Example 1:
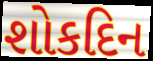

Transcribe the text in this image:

શોકદિન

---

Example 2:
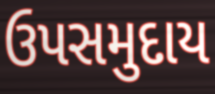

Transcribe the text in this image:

ઉપસમુદાય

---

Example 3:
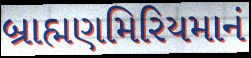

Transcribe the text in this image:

બ્રાહ્મણમિરિયમાનં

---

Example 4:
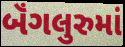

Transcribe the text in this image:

બૅંગલુરુમાં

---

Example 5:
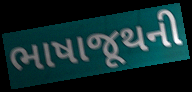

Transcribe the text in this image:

ભાષાજૂથની